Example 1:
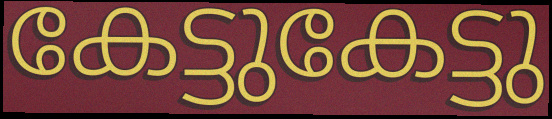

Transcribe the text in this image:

കേട്ടുകേട്ടു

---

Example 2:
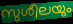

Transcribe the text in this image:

സുശീലയും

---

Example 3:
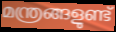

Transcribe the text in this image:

മന്ത്രങ്ങളുണ്ട്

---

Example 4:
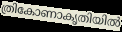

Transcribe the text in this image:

ത്രികോണാകൃതിയിൽ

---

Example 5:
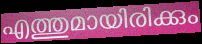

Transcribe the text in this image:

എത്തുമായിരിക്കും